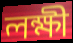
লক্ষী